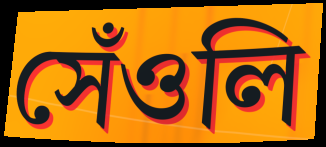
সেঁওলি